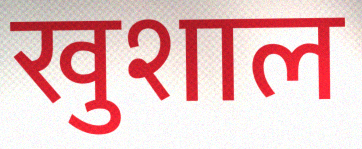
खुशाल